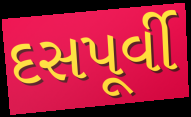
દસપૂર્વી